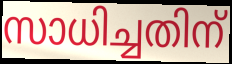
സാധിച്ചതിന്